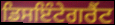
ਡਿਸਇੰਟੇਗਰੈਂਟ